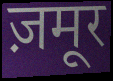
ज़मूर